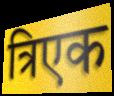
त्रिएक